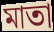
মাতা